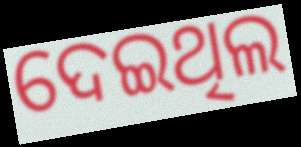
ଦେଇଥିଲ